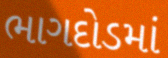
ભાગદોડમાં